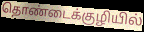
தொண்டைக்குழியில்